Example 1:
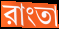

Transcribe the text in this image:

রাংতা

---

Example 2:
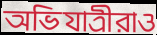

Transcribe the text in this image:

অভিযাত্রীরাও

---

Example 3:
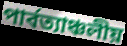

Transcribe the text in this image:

পার্বত্যাঞ্চলীয়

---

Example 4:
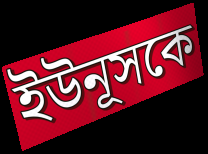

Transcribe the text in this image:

ইউনূসকে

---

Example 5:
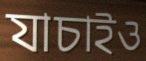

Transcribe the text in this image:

যাচাইও